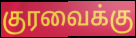
குரவைக்கு